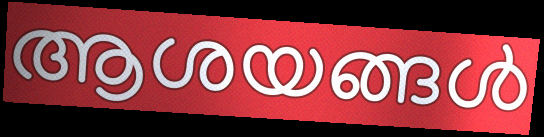
ആശയങ്ങൾ